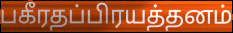
பகீரதப்பிரயத்தனம்